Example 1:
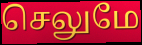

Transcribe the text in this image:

செலுமே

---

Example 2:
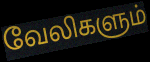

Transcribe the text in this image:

வேலிகளும்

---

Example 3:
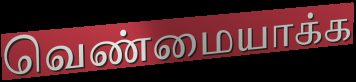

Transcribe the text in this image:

வெண்மையாக்க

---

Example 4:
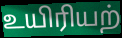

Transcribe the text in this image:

உயிரியற்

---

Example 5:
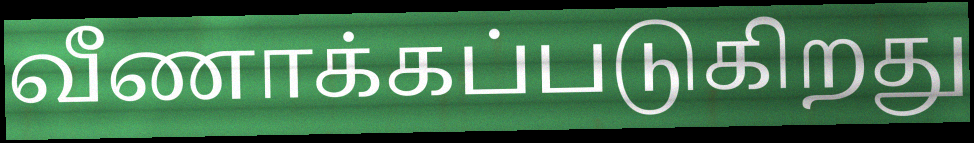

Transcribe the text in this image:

வீணாக்கப்படுகிறது